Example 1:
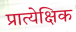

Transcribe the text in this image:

प्रात्येक्षिक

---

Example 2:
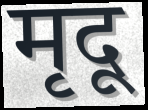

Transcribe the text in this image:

मृदू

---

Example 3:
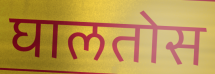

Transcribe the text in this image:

घालतोस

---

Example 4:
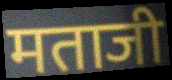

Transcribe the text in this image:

मताजी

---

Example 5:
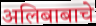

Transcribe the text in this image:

अलिबाबाचे